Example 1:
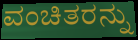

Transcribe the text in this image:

ವಂಚಿತರನ್ನು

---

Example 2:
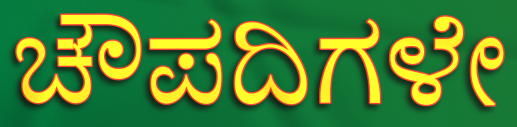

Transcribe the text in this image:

ಚೌಪದಿಗಳೇ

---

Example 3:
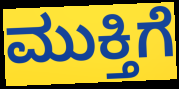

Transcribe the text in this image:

ಮುಕ್ತಿಗೆ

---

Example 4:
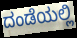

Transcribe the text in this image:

ದಂಡೆಯಲ್ಲಿ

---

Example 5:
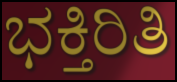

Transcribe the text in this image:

ಭಕ್ತಿರಿತಿ